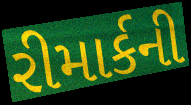
રીમાર્કની